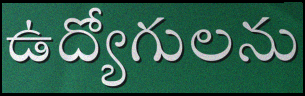
ఉద్యోగులను